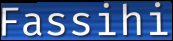
Fassihi